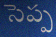
సెప్ప